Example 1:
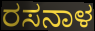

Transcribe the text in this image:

ರಸನಾಳ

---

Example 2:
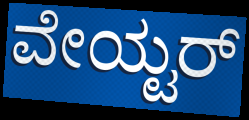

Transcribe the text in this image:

ವೇಯ್ಟರ್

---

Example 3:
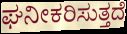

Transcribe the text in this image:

ಘನೀಕರಿಸುತ್ತದೆ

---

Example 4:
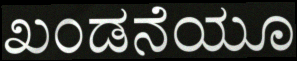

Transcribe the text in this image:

ಖಂಡನೆಯೂ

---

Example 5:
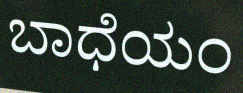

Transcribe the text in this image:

ಬಾಧೆಯಂ